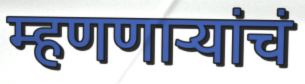
म्हणणाऱ्यांचं